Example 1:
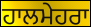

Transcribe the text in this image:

ਹਾਲਮੇਹਰਾ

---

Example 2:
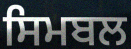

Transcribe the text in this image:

ਸਿਮਬਲ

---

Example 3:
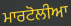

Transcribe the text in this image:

ਮਾਰਟੋਲੀਆ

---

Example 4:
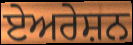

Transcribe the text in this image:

ਏਅਰੇਸ਼ਨ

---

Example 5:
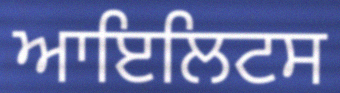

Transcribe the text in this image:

ਆਇਲਿਟਸ